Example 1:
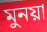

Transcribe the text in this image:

মুনয়া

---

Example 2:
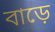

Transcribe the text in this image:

বাড়ে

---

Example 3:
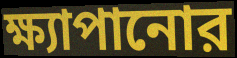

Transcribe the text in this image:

ক্ষ্যাপানোর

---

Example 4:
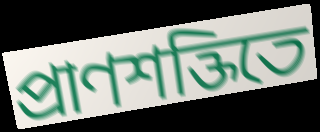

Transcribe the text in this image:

প্রাণশক্তিতে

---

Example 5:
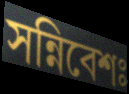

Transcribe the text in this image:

সন্নিবেশঃ